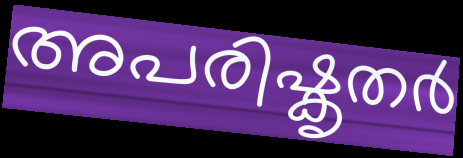
അപരിഷ്കൃതർ